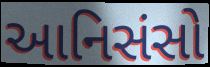
આનિસંસો